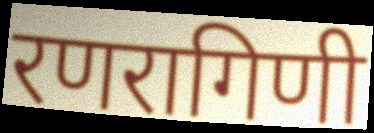
रणरागिणी